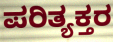
ಪರಿತ್ಯಕ್ತರ